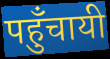
पहुँचायी